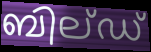
ബില്ഡ്